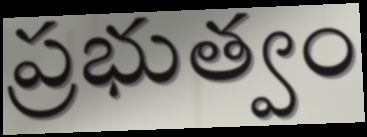
ప్రభుత్వం